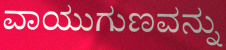
ವಾಯುಗುಣವನ್ನು